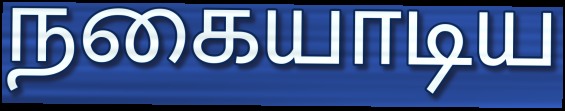
நகையாடிய